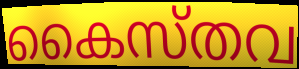
കൈസ്തവ